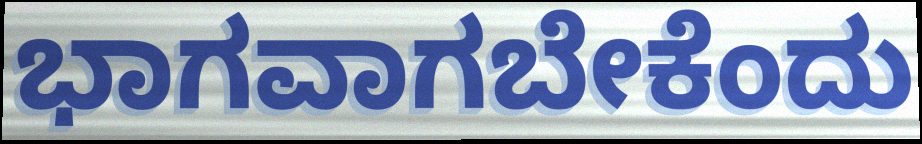
ಭಾಗವಾಗಬೇಕೆಂದು